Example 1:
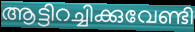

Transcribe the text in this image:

ആട്ടിറച്ചിക്കുവേണ്ടി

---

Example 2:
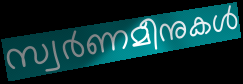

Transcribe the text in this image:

സ്വർണമീനുകൾ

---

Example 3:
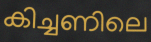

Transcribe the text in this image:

കിച്ചണിലെ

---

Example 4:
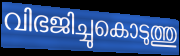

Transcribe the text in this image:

വിഭജിച്ചുകൊടുത്തു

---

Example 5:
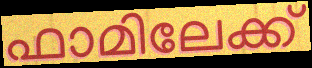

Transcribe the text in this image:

ഫാമിലേക്ക്